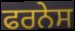
ਫਰਨੇਸ